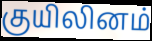
குயிலினம்